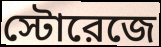
স্টোরেজে